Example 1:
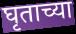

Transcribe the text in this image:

घृताच्या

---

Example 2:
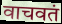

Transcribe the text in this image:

वाचवतं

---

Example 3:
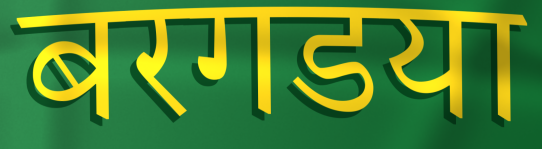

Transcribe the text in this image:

बरगडया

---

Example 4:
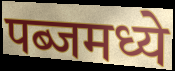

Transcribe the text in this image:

पब्जमध्ये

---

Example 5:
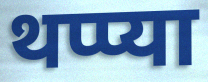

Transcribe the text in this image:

थप्प्या